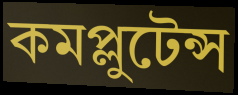
কমপ্লুটেন্স